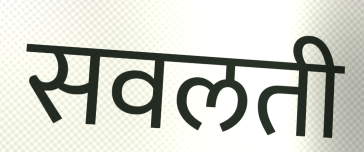
सवलती